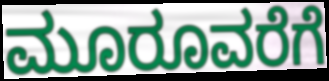
ಮೂರೂವರೆಗೆ